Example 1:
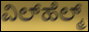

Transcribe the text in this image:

ವಿಲ್‌ಹೆಲ್ಮ್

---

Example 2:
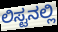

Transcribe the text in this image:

ಲಿಸ್ಟನಲ್ಲಿ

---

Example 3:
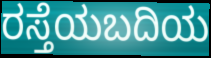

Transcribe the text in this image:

ರಸ್ತೆಯಬದಿಯ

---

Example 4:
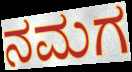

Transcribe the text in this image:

ನಮಗ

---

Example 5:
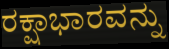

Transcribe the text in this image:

ರಕ್ಷಾಭಾರವನ್ನು